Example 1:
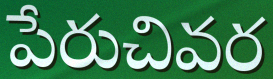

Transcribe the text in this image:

పేరుచివర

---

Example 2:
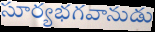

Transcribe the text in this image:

సూర్యభగవానుడు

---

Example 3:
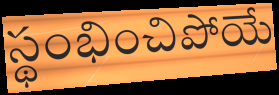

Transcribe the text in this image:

స్థంభించిపోయే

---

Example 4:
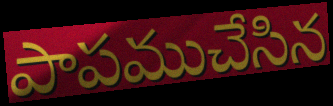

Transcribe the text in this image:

పాపముచేసిన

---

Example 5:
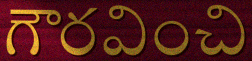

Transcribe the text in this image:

గౌరవించి